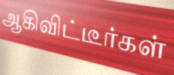
ஆகிவிட்டீர்கள்